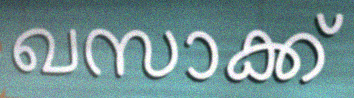
ഖസാക്ക്